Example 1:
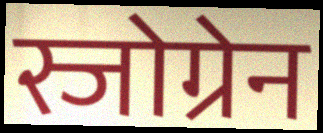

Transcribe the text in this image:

स्जोग्रेन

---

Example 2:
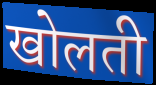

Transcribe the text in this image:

खोलती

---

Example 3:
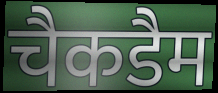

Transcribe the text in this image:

चैकडैम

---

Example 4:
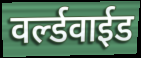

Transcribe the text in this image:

वर्ल्डवाईड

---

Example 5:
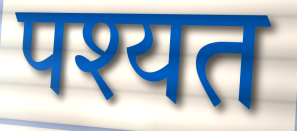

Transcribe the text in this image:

पश्यत